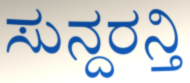
ಸುನ್ದರನ್ತಿ